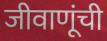
जीवाणूंची